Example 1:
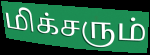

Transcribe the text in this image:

மிக்சரும்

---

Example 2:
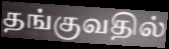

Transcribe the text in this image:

தங்குவதில்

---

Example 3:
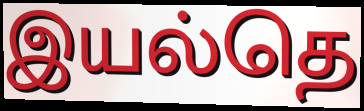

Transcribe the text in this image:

இயல்தெ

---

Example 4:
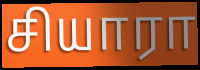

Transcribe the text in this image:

சியாரா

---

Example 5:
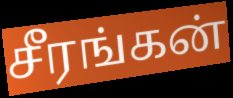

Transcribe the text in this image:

சீரங்கன்